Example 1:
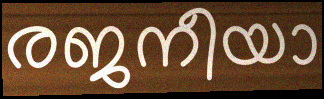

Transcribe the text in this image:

രജനീയാ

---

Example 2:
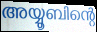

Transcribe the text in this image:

അയ്യൂബിന്റെ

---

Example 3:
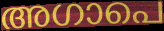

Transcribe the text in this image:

അഗാപെ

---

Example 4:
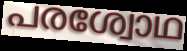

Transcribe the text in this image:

പരശ്വോഥ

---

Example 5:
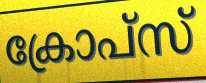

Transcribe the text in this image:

ക്രോപ്സ്